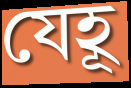
যেহূ